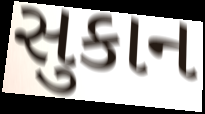
સુકાન